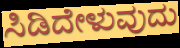
ಸಿಡಿದೇಳುವುದು